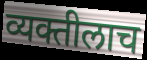
व्यक्तीलाच